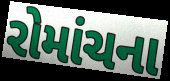
રોમાંચના